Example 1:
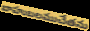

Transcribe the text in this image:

బాహుబలముచేతను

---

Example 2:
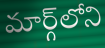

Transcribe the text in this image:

మార్గ్‌లోని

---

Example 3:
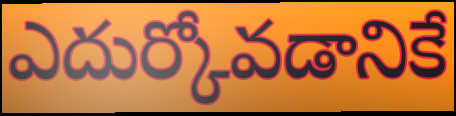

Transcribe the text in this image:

ఎదుర్కోవడానికే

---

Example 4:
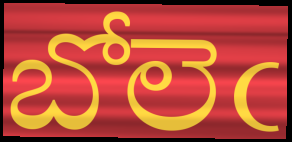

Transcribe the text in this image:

బోలెఁ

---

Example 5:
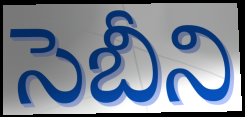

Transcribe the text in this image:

సెబీని